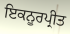
ਇਕਨੂਰਪ੍ਰੀਤ